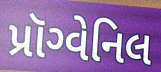
પ્રૉગ્વેનિલ